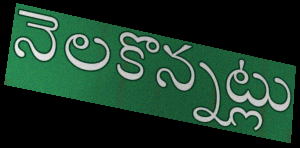
నెలకొన్నట్లు